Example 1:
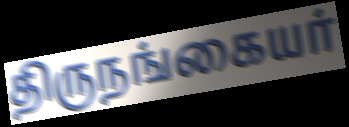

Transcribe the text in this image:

திருநங்கையர்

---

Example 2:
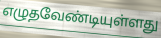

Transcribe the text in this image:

எழுதவேண்டியுள்ளது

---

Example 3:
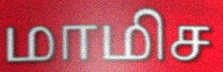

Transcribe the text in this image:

மாமிச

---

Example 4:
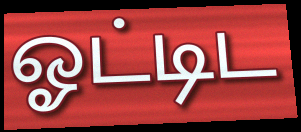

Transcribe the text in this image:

ஓட்டிட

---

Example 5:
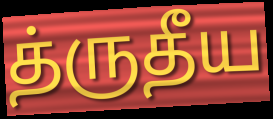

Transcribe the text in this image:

த்ருதீய